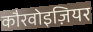
कौरवोइज़ियर